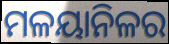
ମଳୟାନିଳର